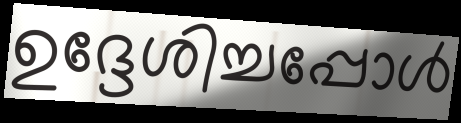
ഉദ്ദേശിച്ചപ്പോൾ